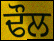
ਢੌਲ